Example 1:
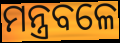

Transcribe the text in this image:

ମନ୍ତ୍ରବଳେ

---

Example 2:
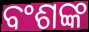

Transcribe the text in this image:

ବଂଶଙ୍କ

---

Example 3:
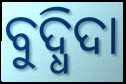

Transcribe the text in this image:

ବୁଦ୍ଧିଦା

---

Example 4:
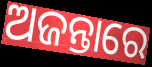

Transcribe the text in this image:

ଅଜନ୍ତାରେ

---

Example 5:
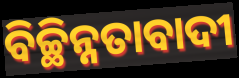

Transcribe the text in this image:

ବିଚ୍ଛିନ୍ନତାବାଦୀ